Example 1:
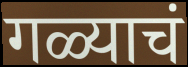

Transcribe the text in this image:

गळ्याचं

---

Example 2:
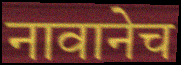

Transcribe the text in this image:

नावानेच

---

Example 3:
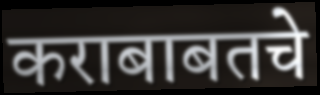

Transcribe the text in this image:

कराबाबतचे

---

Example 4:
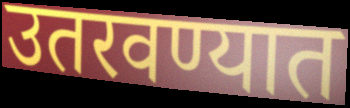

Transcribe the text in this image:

उतरवण्यात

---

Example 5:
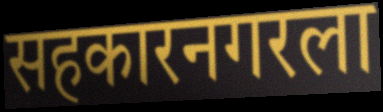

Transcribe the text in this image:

सहकारनगरला